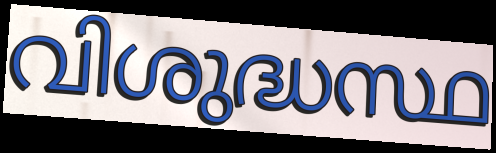
വിശുദ്ധസ്ഥ